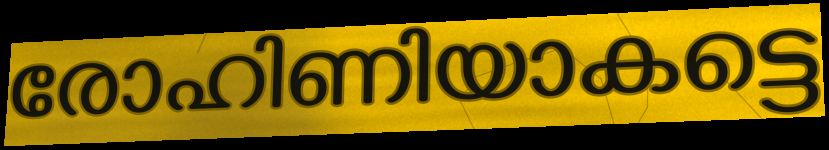
രോഹിണിയാകട്ടെ